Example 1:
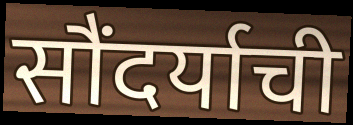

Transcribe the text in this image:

सौंदर्याची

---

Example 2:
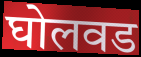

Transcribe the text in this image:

घोलवड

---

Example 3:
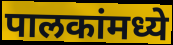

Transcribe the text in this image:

पालकांमध्ये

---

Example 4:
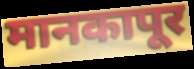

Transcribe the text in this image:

मानकापूर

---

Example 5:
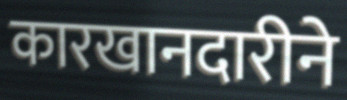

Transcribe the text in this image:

कारखानदारीने